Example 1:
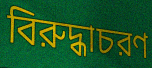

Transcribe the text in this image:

বিরুদ্ধাচরণ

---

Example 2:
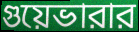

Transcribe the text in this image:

গুয়েভারার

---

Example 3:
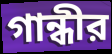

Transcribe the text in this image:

গান্ধীর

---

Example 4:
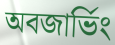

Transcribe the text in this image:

অবজার্ভিং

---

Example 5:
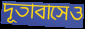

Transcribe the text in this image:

দূতাবাসেও